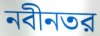
নবীনতর